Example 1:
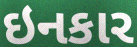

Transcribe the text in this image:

ઇનકાર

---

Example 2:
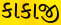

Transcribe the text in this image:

કાકાજી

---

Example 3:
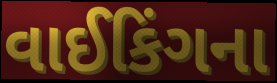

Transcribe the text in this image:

વાઈકિંગના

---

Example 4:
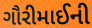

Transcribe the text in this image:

ગૌરીમાઈની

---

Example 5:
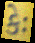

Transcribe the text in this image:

કેઃ